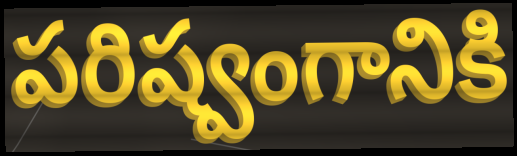
పరిష్వంగానికి